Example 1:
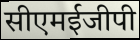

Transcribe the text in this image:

सीएमईजीपी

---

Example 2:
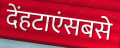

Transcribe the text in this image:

देंहटाएंसबसे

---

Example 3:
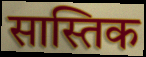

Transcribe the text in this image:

सास्तिक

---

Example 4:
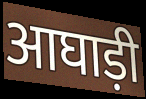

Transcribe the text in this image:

आघाड़ी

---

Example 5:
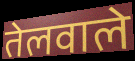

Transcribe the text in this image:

तेलवाले